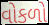
વોકળો